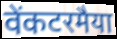
वेंकटरमैया